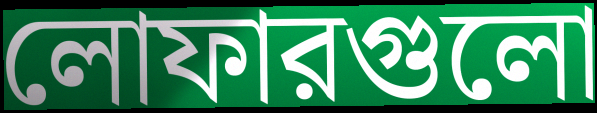
লোফারগুলো